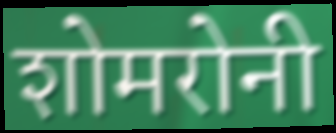
शोमरोनी